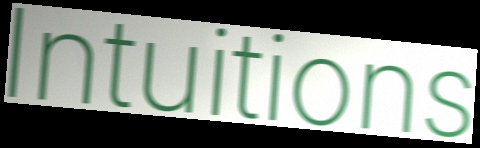
Intuitions